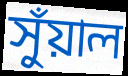
সুঁয়াল